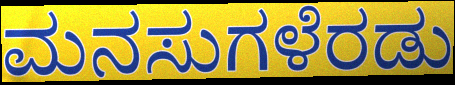
ಮನಸುಗಳೆರಡು